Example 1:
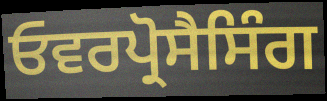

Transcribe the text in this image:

ਓਵਰਪ੍ਰੋਸੈਸਿੰਗ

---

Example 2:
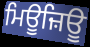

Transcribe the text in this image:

ਮਿਊਜ਼ਿਊ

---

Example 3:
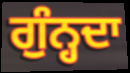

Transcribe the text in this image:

ਗੁੰਨ੍ਹਦਾ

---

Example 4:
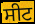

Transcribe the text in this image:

ਸੀਟ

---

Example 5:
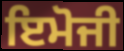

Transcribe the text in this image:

ਇਮੋਜੀ